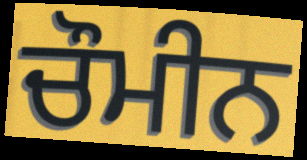
ਚੌਮੀਨ